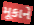
મૂકાને